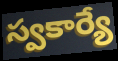
స్వకార్యే